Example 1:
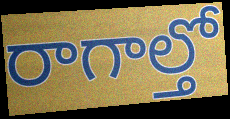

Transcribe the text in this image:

రాగాల్తో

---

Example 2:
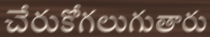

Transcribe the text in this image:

చేరుకోగలుగుతారు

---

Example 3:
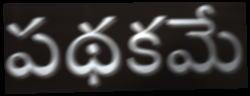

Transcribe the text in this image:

పథకమే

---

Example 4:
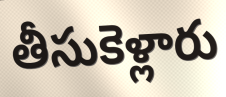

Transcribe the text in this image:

తీసుకెళ్లారు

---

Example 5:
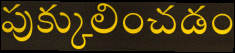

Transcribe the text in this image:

పుక్కులించడం